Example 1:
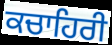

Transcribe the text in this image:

ਕਚਾਹਿਰੀ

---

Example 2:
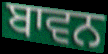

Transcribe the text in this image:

ਬਾਵਨ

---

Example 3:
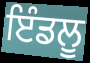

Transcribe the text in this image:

ਇੰਡਲੂ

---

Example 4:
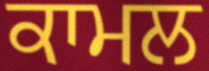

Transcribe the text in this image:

ਕਾਮਲ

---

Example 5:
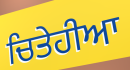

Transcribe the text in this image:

ਚਿਤੇਹੀਆ